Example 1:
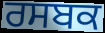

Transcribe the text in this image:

ਰਸਬਕ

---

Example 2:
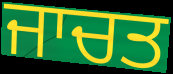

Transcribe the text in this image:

ਜਾਚਤ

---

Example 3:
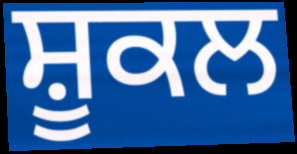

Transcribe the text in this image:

ਸ਼ੂਕਲ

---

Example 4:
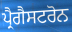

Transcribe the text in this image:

ਪ੍ਰੈਗੈਸਟਰੋਨ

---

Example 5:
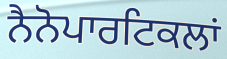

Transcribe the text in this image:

ਨੈਨੋਪਾਰਟਿਕਲਾਂ